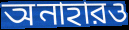
অনাহারও